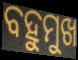
ବହୁମୁଖ